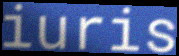
iuris